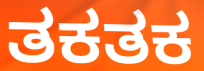
ತಕತಕ